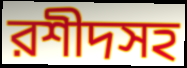
রশীদসহ